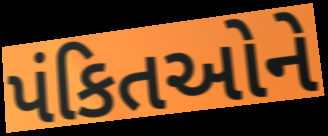
પંકિતઓને